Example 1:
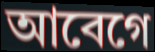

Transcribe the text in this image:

আবেগে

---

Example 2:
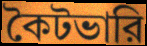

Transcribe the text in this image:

কৈটভারি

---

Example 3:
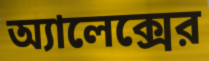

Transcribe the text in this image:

অ্যালেক্সের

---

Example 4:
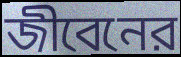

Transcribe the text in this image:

জীবেনের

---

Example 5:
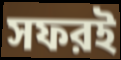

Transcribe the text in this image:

সফরই